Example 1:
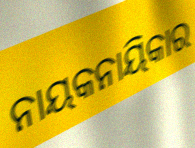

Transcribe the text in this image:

ନାୟକନାୟିକାର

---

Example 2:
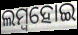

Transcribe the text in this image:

ଲମ୍ୱହୋଇ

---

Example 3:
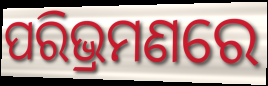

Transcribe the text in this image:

ପରିଭ୍ରମଣରେ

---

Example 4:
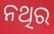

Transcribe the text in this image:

ନଥିର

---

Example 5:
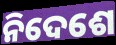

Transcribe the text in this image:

ନିଦେଶେ